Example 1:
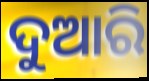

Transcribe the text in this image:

ଦୁଆରି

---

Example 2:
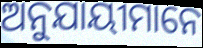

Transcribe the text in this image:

ଅନୁଯାୟୀମାନେ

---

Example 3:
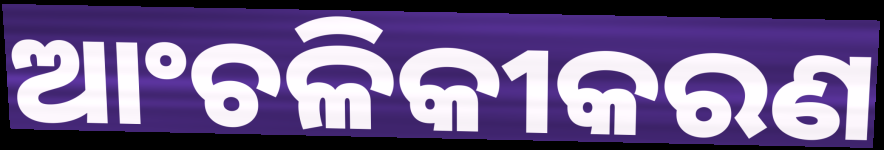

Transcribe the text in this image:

ଆଂଚଳିକୀକରଣ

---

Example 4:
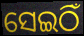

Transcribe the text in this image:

ସେଇଠିଁ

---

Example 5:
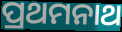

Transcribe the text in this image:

ପ୍ରଥମନାଥ